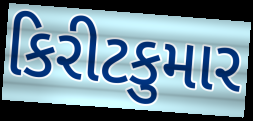
કિરીટકુમાર